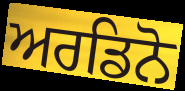
ਅਰਡਿਨੋ